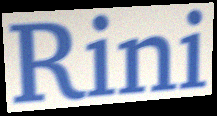
Rini